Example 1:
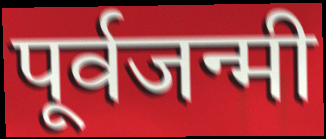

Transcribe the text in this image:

पूर्वजन्मी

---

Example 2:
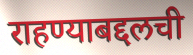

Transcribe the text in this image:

राहण्याबद्दलची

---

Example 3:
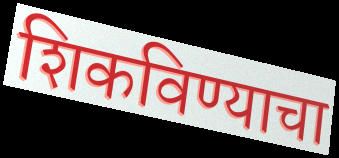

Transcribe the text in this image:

शिकविण्याचा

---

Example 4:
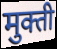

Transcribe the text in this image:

मुक्ती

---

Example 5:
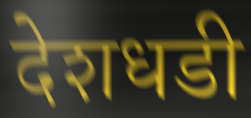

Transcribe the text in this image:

देशधडी